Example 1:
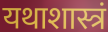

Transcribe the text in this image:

यथाशास्त्रं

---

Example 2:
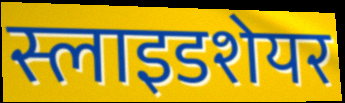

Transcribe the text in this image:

स्लाइडशेयर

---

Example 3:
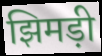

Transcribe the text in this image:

झिमड़ी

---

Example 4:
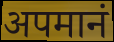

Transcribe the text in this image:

अपमानं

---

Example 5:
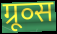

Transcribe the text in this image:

ग्रूव्स